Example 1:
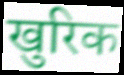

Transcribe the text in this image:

खुरिक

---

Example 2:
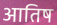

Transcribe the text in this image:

आतिष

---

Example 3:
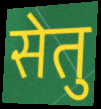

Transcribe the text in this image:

सेतु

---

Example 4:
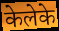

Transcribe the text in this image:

केलेके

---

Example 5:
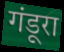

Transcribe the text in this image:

गंडूरा